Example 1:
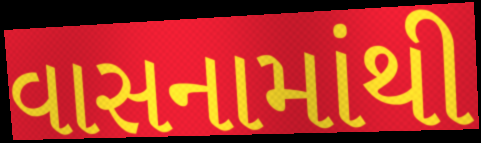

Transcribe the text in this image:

વાસનામાંથી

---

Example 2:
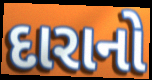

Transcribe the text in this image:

દારાનો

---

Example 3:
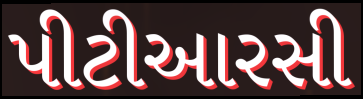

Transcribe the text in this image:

પીટીઆરસી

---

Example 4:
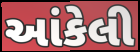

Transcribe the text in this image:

આંકેલી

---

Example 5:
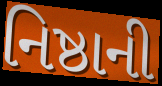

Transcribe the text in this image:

નિષ્ઠાની